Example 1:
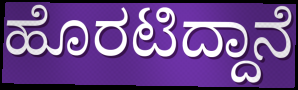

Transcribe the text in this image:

ಹೊರಟಿದ್ದಾನೆ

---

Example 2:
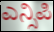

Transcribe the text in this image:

ಎನ್ಸಿಪಿ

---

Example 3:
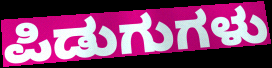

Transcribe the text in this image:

ಪಿಡುಗುಗಳು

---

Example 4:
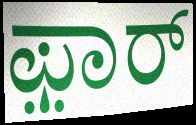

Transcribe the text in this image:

ಫ಼ಾರ್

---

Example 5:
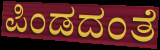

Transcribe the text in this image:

ಪಿಂಡದಂತೆ